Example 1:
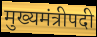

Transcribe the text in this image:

मुख्यमंत्रीपदी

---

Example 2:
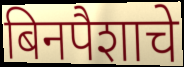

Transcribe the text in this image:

बिनपैशाचे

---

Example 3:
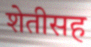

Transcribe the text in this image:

शेतीसह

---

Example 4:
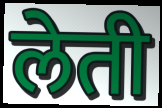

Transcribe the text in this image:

लेती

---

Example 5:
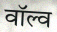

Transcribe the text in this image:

वॉल्व